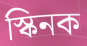
স্কিনক